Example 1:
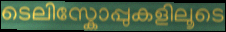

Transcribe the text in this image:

ടെലിസ്കോപ്പുകളിലൂടെ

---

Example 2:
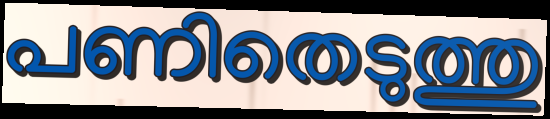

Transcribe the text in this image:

പണിതെടുത്തു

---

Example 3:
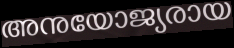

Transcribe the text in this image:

അനുയോജ്യരായ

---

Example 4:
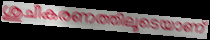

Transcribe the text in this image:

ശുചീകരണത്തിലൂടെയാണ്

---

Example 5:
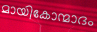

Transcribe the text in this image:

മായികോന്മാദം